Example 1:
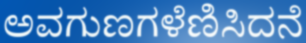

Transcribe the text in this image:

ಅವಗುಣಗಳೆಣಿಸಿದನೆ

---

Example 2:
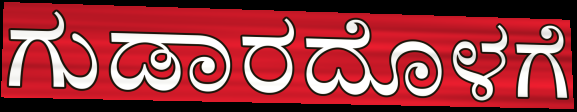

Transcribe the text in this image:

ಗುಡಾರದೊಳಗೆ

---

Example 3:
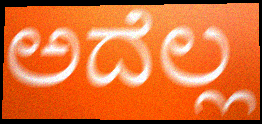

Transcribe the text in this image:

ಅದೆಲ್ಲ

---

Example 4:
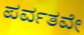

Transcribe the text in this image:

ಪರ್ವತವೇ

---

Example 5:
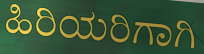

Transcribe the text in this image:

ಹಿರಿಯರಿಗಾಗಿ